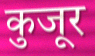
कुजूर